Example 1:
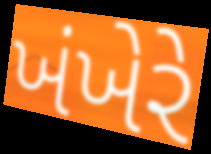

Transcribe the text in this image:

ખંખેરે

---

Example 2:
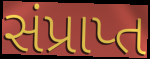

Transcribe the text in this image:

સંપ્રાપ્ત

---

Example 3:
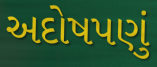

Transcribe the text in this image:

અદોષપણું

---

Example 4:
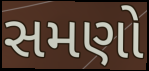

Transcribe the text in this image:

સમણો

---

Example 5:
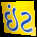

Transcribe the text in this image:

ઇંટ